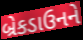
બ્રેકડાઉનને